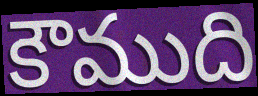
కౌముది